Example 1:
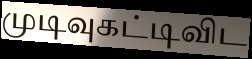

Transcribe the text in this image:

முடிவுகட்டிவிட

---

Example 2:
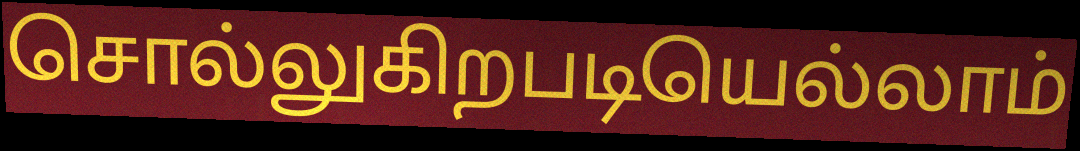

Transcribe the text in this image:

சொல்லுகிறபடியெல்லாம்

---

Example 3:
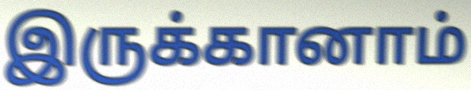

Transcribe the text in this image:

இருக்கானாம்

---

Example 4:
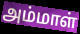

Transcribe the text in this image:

அம்மாள்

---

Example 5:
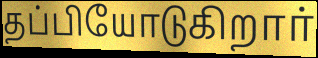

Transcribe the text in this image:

தப்பியோடுகிறார்